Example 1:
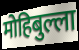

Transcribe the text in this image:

मोहिबुल्ला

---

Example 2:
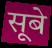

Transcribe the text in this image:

सूबे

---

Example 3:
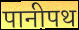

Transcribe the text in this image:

पानीपथ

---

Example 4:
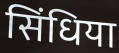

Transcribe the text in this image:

सिंधिया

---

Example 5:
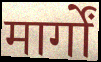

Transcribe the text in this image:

मार्गों